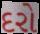
દરો